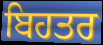
ਬਿਹਤਰ